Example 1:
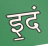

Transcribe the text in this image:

इ॒दं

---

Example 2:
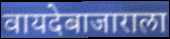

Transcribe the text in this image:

वायदेबाजाराला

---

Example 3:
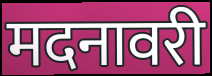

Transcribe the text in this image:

मदनावरी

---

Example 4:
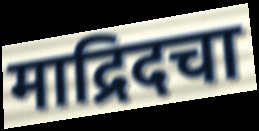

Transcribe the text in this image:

माद्रिदचा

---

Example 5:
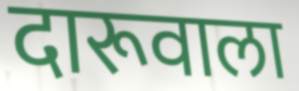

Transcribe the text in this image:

दारूवाला